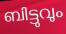
ബിട്ടുവും